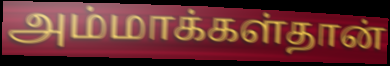
அம்மாக்கள்தான்